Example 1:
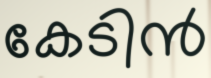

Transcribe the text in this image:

കേടിൻ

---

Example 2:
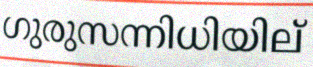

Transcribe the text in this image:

ഗുരുസന്നിധിയില്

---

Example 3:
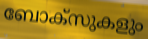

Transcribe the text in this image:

ബോക്സുകളും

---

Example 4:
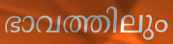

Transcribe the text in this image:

ഭാവത്തിലും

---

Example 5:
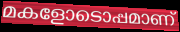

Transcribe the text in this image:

മകളോടൊപ്പമാണ്